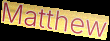
Matthew